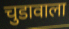
चुडावाला